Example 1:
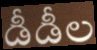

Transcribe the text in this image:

డీడీల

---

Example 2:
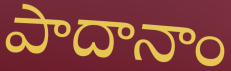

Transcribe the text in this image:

పాదానాం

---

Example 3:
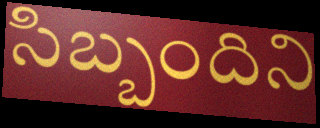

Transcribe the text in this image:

సిబ్బందిని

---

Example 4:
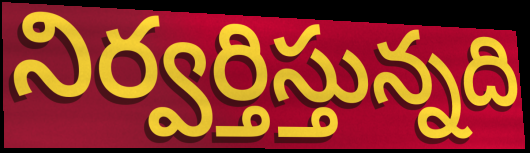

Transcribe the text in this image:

నిర్వర్తిస్తున్నది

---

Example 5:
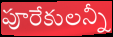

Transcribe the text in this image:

పూరేకులన్నీ